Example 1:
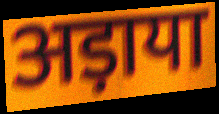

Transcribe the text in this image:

अड़ाया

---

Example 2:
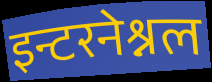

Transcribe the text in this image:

इन्टरनेश्नल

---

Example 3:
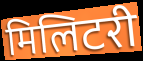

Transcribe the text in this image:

मिलिटरी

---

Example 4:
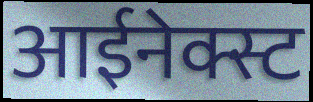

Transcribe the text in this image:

आईनेक्स्ट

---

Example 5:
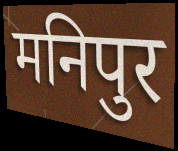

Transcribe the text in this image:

मनिपुर